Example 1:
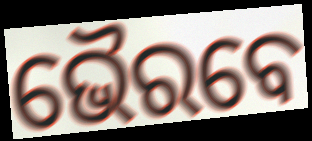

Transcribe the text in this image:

ଭୈରବେ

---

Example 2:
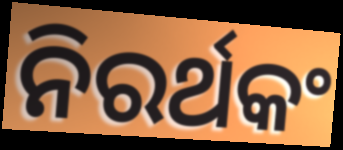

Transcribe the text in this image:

ନିରର୍ଥକଂ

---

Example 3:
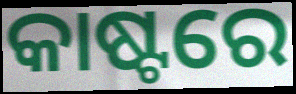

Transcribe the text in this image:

କାଷ୍ଟରେ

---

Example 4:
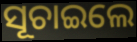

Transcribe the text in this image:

ସୂଚାଇଲେ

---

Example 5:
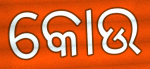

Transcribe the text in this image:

କୋଉ